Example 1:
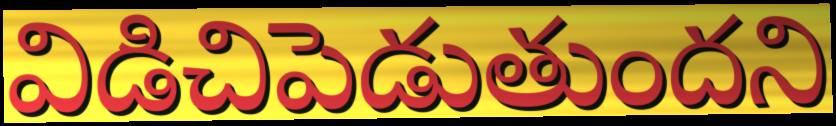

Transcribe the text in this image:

విడిచిపెడుతుందని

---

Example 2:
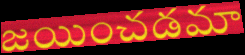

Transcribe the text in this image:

జయించడమా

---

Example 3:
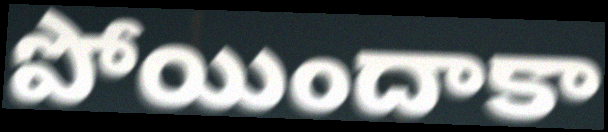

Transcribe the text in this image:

పోయిందాకా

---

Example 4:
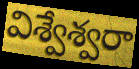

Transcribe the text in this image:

విశ్వేశ్వరా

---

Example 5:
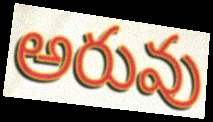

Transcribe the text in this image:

అరువు